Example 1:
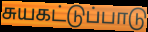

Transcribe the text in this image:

சுயகட்டுப்பாடு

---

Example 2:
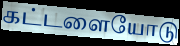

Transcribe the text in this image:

கட்டளையோடு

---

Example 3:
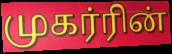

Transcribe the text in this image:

முகர்ரின்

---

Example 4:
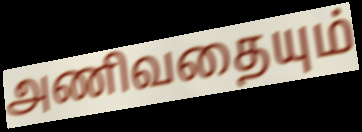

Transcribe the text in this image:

அணிவதையும்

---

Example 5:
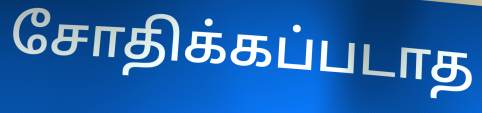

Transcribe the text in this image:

சோதிக்கப்படாத